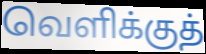
வெளிக்குத்